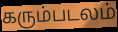
கரும்படலம்